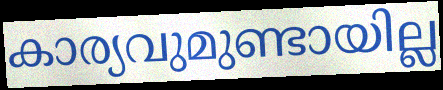
കാര്യവുമുണ്ടായില്ല